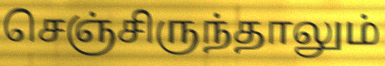
செஞ்சிருந்தாலும்